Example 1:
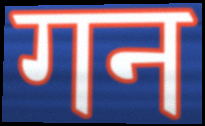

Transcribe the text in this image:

गन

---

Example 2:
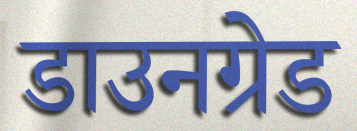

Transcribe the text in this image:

डाउनग्रेड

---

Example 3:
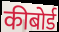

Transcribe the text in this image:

कीबोर्ड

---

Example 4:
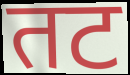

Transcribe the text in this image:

तट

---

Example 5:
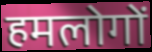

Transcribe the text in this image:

हमलोगों